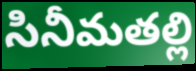
సినీమతల్లి